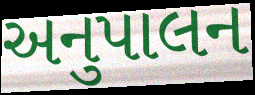
અનુપાલન